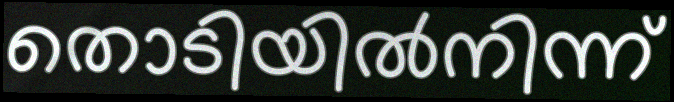
തൊടിയിൽനിന്ന്